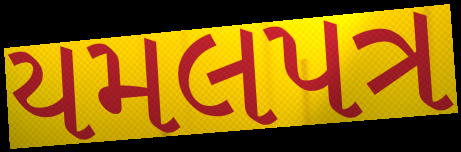
યમલપત્ર